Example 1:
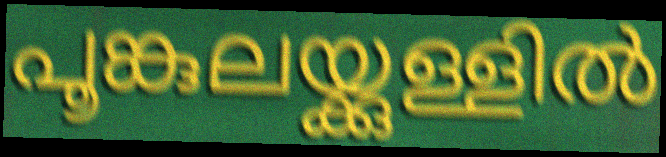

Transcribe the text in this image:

പൂങ്കുലയ്ക്കുള്ളിൽ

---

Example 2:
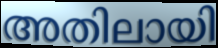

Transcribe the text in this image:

അതിലായി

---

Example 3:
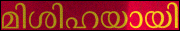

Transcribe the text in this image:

മിശിഹയായി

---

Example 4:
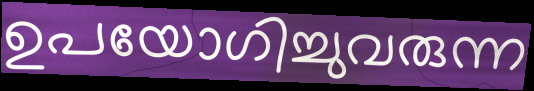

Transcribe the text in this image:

ഉപയോഗിച്ചുവരുന്ന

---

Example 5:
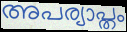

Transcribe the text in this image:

അപര്യാപ്തം